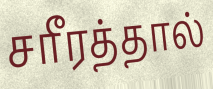
சரீரத்தால்